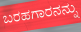
ಬರಹಗಾರನನ್ನು